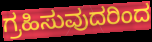
ಗ್ರಹಿಸುವುದರಿಂದ